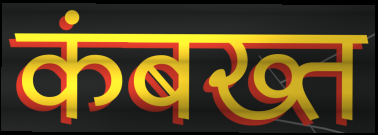
कंबख्त